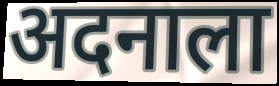
अदनाला